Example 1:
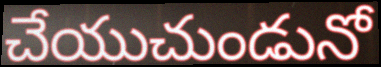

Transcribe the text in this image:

చేయుచుండునో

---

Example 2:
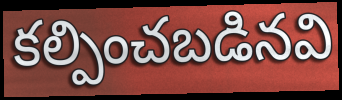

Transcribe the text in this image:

కల్పించబడినవి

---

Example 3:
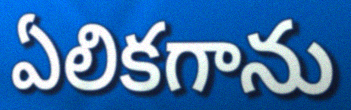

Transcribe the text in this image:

ఏలికగాను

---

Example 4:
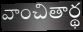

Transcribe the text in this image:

వాంచితార్థ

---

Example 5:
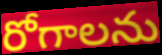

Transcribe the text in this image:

రోగాలను